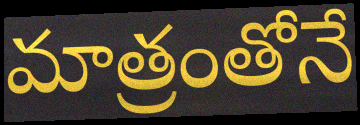
మాత్రంతోనే